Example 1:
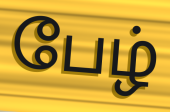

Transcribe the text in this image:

பேழ்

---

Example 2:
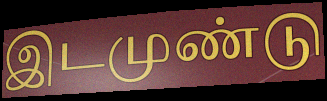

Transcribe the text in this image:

இடமுண்டு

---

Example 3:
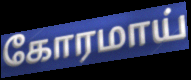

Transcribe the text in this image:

கோரமாய்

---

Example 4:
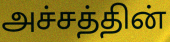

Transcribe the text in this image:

அச்சத்தின்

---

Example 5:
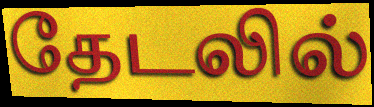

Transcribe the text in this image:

தேடலில்